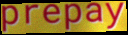
prepay